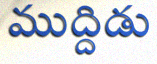
ముద్దిడు